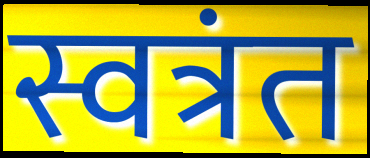
स्वत्रंत